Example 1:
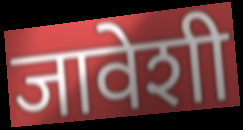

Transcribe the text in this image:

जावेशी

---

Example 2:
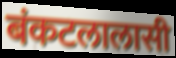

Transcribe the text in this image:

बंकटलालासी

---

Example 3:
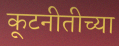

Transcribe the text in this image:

कूटनीतीच्या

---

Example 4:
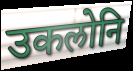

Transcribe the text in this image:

उकलोनि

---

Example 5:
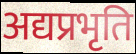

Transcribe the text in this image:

अद्यप्रभृति